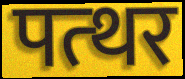
पत्‍थर